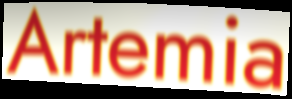
Artemia